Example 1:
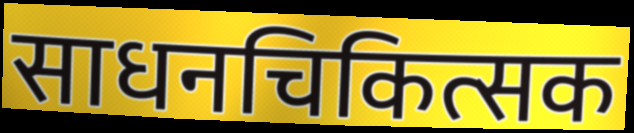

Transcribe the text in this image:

साधनचिकित्सक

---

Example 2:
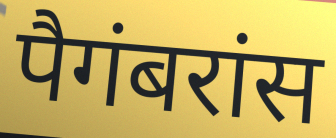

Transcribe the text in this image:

पैगंबरांस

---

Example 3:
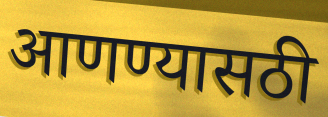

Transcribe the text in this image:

आणण्यासठी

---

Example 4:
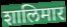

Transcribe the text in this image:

शालिमार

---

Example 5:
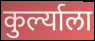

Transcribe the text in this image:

कुर्ल्याला